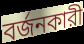
বর্জনকারী